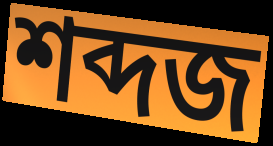
শব্দজ